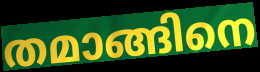
തമാങ്ങിനെ